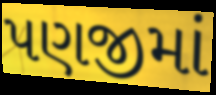
પણજીમાં